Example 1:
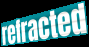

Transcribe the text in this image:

refracted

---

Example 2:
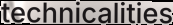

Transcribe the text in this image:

technicalities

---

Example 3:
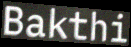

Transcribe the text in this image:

Bakthi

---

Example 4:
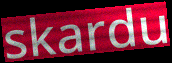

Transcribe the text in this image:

skardu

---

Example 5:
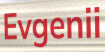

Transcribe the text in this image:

Evgenii